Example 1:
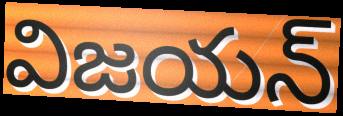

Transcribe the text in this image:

విజయన్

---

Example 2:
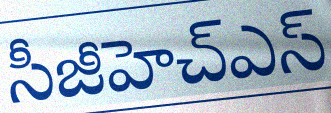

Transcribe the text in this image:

సీజీహెచ్ఎస్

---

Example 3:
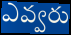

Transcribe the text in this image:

ఎవ్వరు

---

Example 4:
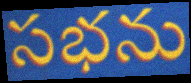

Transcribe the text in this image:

సభను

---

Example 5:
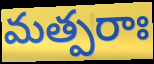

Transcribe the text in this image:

మత్పరాః